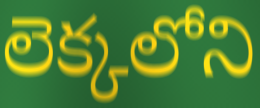
లెక్కలోని